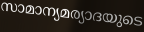
സാമാന്യമര്യാദയുടെ